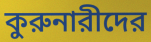
কুরুনারীদের